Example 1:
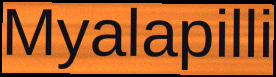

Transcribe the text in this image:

Myalapilli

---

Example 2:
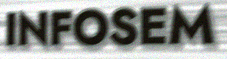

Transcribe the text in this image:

INFOSEM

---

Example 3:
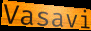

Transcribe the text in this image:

Vasavi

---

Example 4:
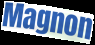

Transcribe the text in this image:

Magnon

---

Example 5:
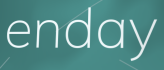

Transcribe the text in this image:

enday